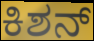
ಕಿಶನ್